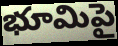
భూమిపై